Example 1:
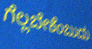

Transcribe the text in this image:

ಗೆಲ್ಲಬೇಕೆಂಬುದು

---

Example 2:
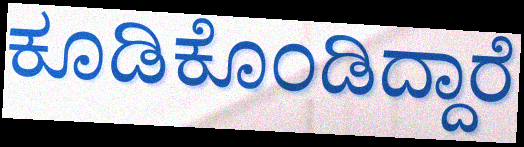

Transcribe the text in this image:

ಕೂಡಿಕೊಂಡಿದ್ದಾರೆ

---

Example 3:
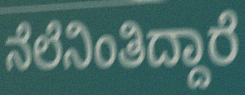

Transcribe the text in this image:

ನೆಲೆನಿಂತಿದ್ದಾರೆ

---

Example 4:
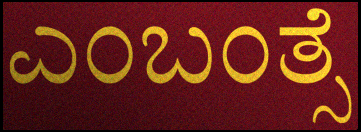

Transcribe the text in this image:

ಎಂಬಂತ್ಸೆ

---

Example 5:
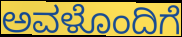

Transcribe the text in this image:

ಅವಳೊಂದಿಗೆ